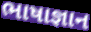
ભાષાજ્ઞાન